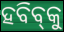
ହବିବ୍‌କୁ